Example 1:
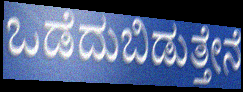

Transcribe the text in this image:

ಒಡೆದುಬಿಡುತ್ತೇನೆ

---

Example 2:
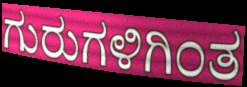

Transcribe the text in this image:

ಗುರುಗಳಿಗಿಂತ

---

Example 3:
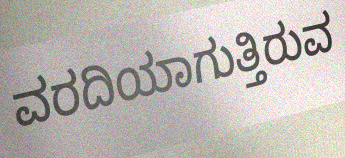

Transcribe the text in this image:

ವರದಿಯಾಗುತ್ತಿರುವ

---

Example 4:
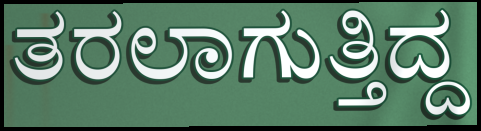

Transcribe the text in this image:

ತರಲಾಗುತ್ತಿದ್ದ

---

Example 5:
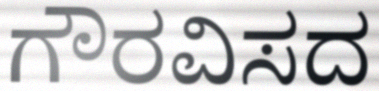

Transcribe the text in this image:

ಗೌರವಿಸದ